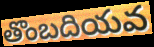
తొంబదియవ